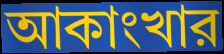
আকাংখার